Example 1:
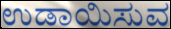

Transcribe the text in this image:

ಉಡಾಯಿಸುವ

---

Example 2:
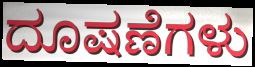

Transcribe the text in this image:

ದೂಷಣೆಗಳು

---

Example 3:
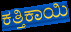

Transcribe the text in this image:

ಕತ್ತಿಕಾಯಿ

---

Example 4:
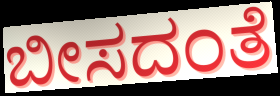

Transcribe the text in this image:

ಬೀಸದಂತೆ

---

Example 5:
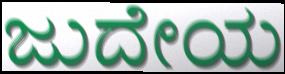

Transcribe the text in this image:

ಜುದೇಯ